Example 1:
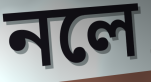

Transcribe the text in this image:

নলে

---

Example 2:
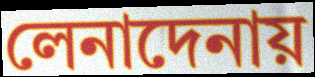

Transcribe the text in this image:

লেনাদেনায়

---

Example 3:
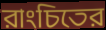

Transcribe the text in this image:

রাংচিতের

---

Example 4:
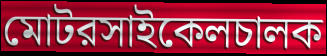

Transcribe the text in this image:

মোটরসাইকেলচালক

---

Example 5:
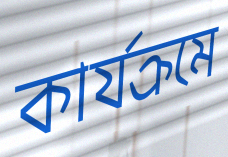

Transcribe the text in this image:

কার্যক্রমে